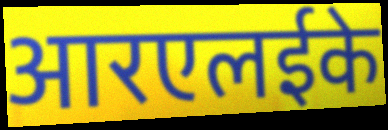
आरएलईके